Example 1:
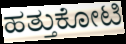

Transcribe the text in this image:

ಹತ್ತುಕೋಟಿ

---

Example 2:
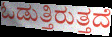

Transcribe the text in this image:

ಓಡುತ್ತಿರುತ್ತದೆ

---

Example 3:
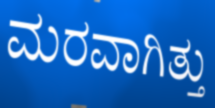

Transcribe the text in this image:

ಮರವಾಗಿತ್ತು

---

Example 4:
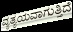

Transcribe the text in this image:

ವ್ಯತ್ಯಯವಾಗುತ್ತಿದೆ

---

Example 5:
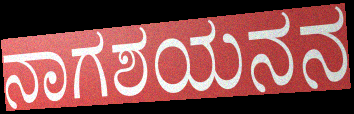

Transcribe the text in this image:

ನಾಗಶಯನನ